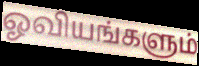
ஓவியங்களும்